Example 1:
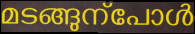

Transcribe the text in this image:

മടങ്ങുന്പോൾ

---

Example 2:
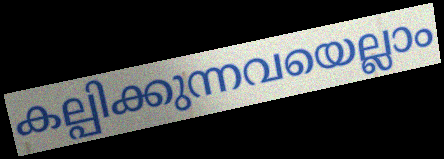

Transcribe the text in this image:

കല്പിക്കുന്നവയെല്ലാം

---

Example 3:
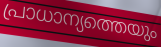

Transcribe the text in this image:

പ്രാധാന്യത്തെയും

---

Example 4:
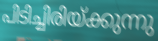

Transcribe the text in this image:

പിടിച്ചിരിയ്ക്കുന്നു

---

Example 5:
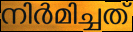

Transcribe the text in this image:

നിർമിച്ചത്